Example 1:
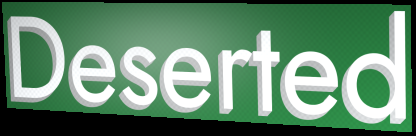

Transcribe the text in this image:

Deserted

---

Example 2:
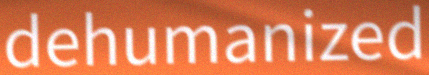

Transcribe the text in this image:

dehumanized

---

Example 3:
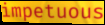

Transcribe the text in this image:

impetuous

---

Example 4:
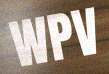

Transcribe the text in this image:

WPV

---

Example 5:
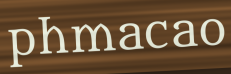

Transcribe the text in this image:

phmacao